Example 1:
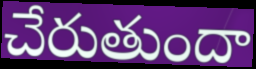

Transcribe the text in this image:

చేరుతుందా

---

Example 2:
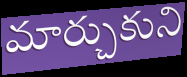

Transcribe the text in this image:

మార్చుకుని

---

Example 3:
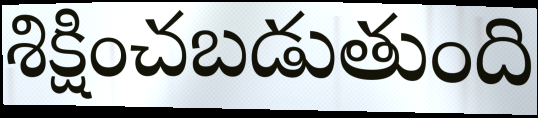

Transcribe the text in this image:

శిక్షించబడుతుంది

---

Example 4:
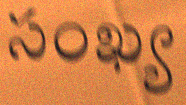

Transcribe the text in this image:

సంఖ్య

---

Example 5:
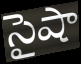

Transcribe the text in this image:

సైషా